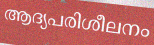
ആദ്യപരിശീലനം